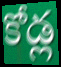
కోడ్ల